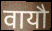
वायौ